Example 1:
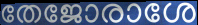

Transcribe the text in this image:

തേജോരാശേ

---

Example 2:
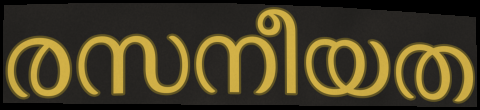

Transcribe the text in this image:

രസനീയത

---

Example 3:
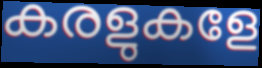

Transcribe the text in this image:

കരളുകളേ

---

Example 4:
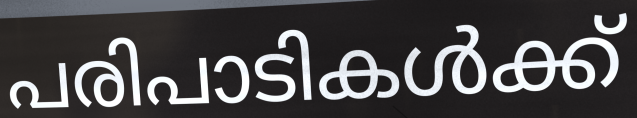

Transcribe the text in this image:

പരിപാടികൾക്ക്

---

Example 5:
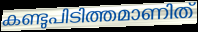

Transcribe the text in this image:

കണ്ടുപിടിത്തമാണിത്